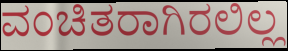
ವಂಚಿತರಾಗಿರಲಿಲ್ಲ